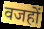
वजहों